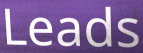
Leads